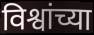
विश्वांच्या